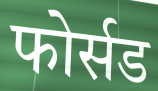
फोर्सड